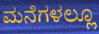
ಮನೆಗಳಲ್ಲೂ